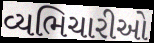
વ્યભિચારીઓ